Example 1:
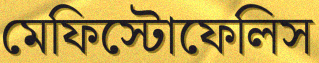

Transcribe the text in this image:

মেফিস্টোফেলিস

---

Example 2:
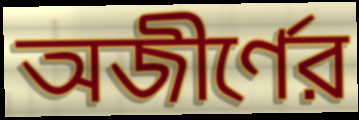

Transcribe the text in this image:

অজীর্ণের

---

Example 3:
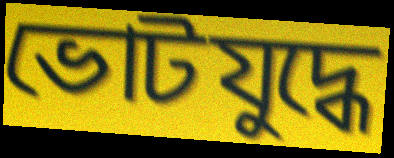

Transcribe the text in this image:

ভোটযুদ্ধে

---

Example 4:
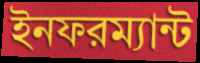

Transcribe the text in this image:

ইনফরম্যান্ট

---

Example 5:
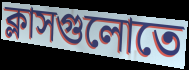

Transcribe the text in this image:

ক্লাসগুলোতে